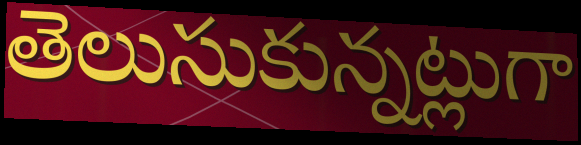
తెలుసుకున్నట్లుగా